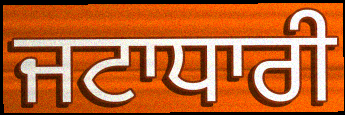
ਜਟਾਧਾਰੀ